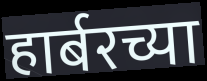
हार्बरच्या